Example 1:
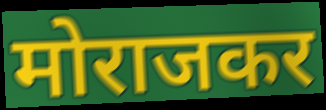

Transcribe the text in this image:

मोराजकर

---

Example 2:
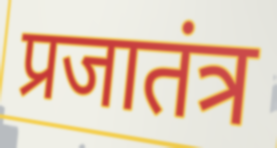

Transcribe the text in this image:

प्रजातंत्र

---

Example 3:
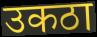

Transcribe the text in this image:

उकठा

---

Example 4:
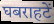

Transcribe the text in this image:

घबराहटें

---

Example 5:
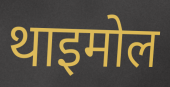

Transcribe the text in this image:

थाइमोल